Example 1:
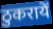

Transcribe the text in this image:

ठुकरायें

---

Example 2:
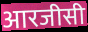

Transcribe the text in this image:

आरजीसी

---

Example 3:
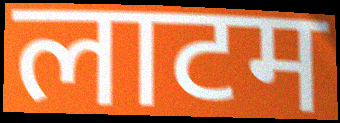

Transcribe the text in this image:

लाटम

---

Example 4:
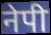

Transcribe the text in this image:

नेपी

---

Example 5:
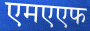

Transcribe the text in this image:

एमएएफ